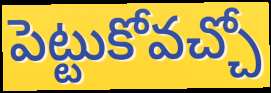
పెట్టుకోవచ్చో